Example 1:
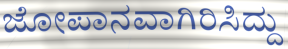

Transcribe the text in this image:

ಜೋಪಾನವಾಗಿರಿಸಿದ್ದು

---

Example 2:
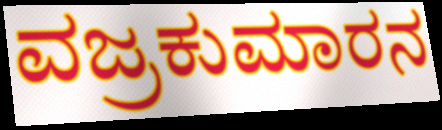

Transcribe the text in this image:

ವಜ್ರಕುಮಾರನ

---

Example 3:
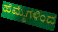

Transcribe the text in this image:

ಹೆಮ್ಮೆಗಳಿಂದ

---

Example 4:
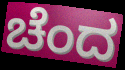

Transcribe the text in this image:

ಚೆಂದ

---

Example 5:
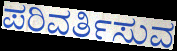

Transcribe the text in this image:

ಪರಿವರ್ತಿಸುವ